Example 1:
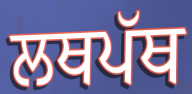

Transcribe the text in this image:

ਲਥਪੱਥ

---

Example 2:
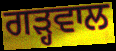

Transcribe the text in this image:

ਗੜ੍ਹਵਾਲ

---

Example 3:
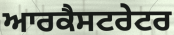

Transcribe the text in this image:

ਆਰਕੈਸਟਰੇਟਰ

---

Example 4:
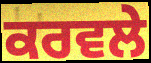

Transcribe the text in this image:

ਕਰਵਲੇ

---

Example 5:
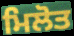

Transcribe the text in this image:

ਮਿਲੋਤ